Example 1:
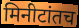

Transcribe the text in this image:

मिनीटांतच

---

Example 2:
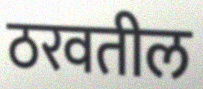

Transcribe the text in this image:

ठरवतील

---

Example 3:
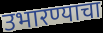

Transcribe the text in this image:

उभारण्याचा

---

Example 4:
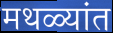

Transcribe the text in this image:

मथळ्यांत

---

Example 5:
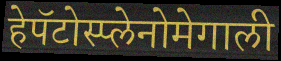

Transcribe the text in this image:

हेपॅटोस्प्लेनोमेगाली